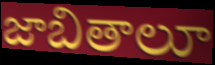
జాబితాలూ